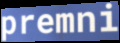
premni